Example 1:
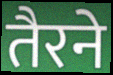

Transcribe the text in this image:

तैरने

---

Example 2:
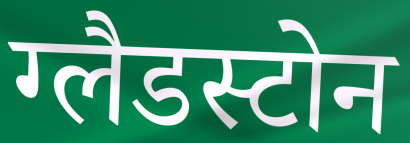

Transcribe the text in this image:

ग्लैडस्टोन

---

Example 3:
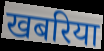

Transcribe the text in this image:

खबरिया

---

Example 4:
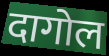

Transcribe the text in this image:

दागोल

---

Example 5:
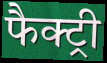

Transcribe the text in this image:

फैक्ट्री